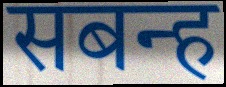
सबन्ह